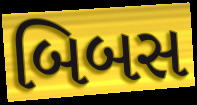
બિબસ